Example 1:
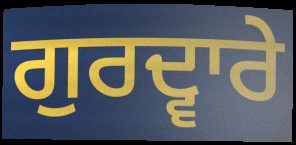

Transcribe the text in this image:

ਗੁਰਦ੍ਵਾਰੇ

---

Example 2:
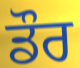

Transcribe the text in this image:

ਡੌਰ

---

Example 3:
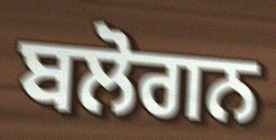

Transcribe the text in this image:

ਬਲੋਗਨ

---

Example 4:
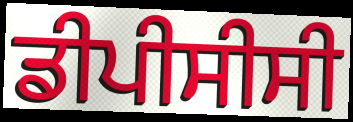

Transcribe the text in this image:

ਡੀਪੀਸੀਸੀ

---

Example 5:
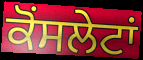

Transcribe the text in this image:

ਕੋਂਸਲੇਟਾਂ